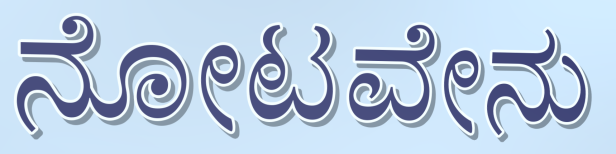
ನೋಟವೇನು